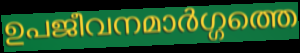
ഉപജീവനമാർഗ്ഗത്തെ